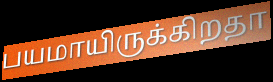
பயமாயிருக்கிறதா